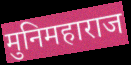
मुनिमहाराज